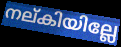
നല്കിയില്ലേ